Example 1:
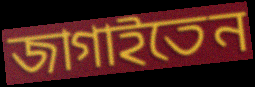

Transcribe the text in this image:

জাগাইতেন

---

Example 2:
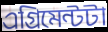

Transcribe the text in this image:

এগ্রিমেন্টটা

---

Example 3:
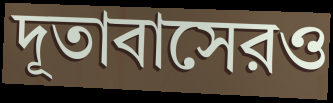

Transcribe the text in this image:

দূতাবাসেরও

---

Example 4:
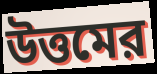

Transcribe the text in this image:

উত্তমের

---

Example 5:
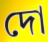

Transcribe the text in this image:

দো